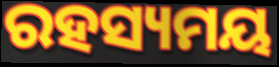
ରହସ୍ୟମୟ